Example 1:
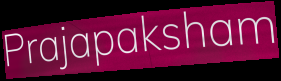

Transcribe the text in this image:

Prajapaksham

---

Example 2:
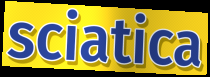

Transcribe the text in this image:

sciatica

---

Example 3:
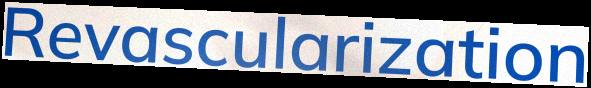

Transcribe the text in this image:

Revascularization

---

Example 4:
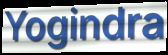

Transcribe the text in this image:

Yogindra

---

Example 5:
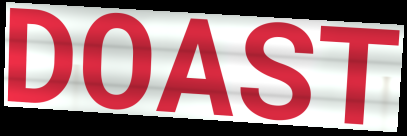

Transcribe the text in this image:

DOAST